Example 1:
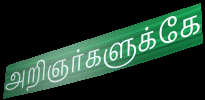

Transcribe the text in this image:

அறிஞர்களுக்கே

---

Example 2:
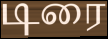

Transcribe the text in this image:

டிரை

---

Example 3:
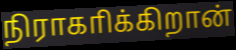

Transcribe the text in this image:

நிராகரிக்கிறான்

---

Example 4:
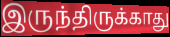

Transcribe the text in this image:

இருந்திருக்காது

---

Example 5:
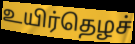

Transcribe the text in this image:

உயிர்தெழச்